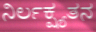
ನಿರ್ಲಕ್ಷ್ಯತನ